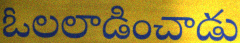
ఓలలాడించాడు